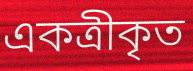
একত্রীকৃত